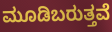
ಮೂಡಿಬರುತ್ತವೆ